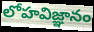
లోహవిజ్ఞానం